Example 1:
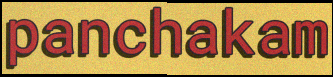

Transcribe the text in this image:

panchakam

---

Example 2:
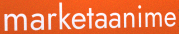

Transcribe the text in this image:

marketaanime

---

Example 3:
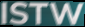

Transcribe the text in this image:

ISTW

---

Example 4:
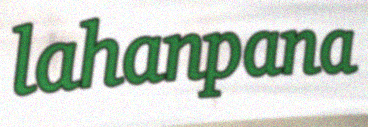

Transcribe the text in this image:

lahanpana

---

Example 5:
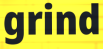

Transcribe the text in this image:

grind